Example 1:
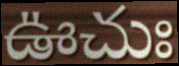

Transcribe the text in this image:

ఊచుః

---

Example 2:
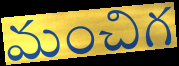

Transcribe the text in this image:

మంచిగ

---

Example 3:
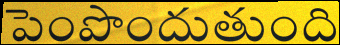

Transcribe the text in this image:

పెంపొందుతుంది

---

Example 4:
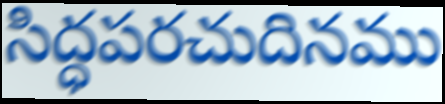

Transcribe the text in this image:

సిద్ధపరచుదినము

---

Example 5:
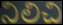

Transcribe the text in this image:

నిలిచి